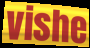
vishe